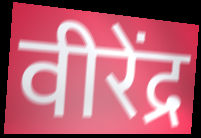
वीरेंद्र